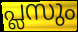
പ്ലസും